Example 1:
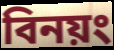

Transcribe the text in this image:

বিনয়ং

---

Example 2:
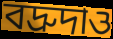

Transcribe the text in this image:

বদ্রুদাও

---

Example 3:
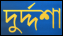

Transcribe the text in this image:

দুর্দ্দশা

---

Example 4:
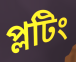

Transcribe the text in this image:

প্লটিং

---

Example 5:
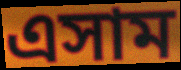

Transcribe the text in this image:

এসাম